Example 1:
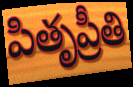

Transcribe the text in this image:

పితృప్రీతి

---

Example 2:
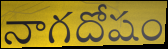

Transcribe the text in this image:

నాగదోషం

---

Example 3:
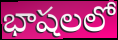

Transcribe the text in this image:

భాషలలో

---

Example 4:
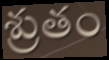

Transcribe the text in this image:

శ్రుతం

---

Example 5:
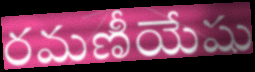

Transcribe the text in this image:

రమణీయేషు